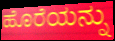
ಹೊರೆಯನ್ನು